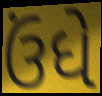
ઉંધે